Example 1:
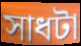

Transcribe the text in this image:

সাধটা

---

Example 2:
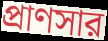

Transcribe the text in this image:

প্রাণসার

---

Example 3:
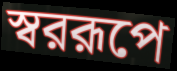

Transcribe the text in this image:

স্বররূপে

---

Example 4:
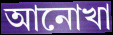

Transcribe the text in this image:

আনোখা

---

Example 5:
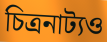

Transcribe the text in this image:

চিত্রনাট্যও